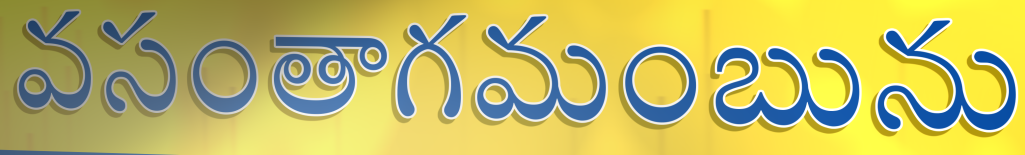
వసంతాగమంబును